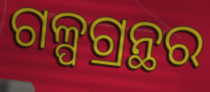
ଗଳ୍ପଗ୍ରନ୍ଥର